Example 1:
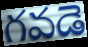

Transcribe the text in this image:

గవడె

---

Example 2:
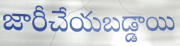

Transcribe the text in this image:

జారీచేయబడ్డాయి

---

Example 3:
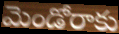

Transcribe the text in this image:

మెండోరాకు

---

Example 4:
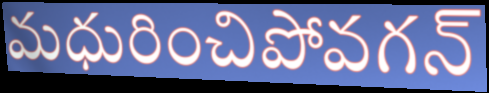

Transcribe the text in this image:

మధురించిపోవగన్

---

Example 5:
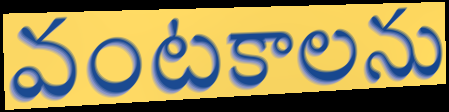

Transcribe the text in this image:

వంటకాలను